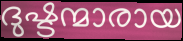
ദുഷ്ടന്മാരായ